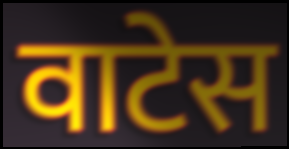
वाटेस